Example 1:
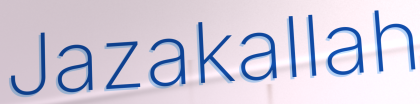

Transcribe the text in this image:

Jazakallah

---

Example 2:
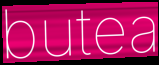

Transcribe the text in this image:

butea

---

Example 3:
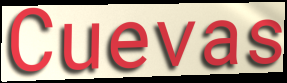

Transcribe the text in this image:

Cuevas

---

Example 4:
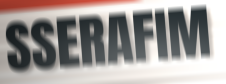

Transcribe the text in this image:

SSERAFIM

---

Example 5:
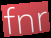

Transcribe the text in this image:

fnr